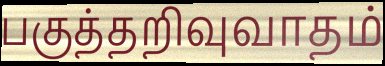
பகுத்தறிவுவாதம்